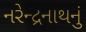
નરેન્દ્રનાથનું